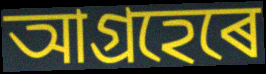
আগ্ৰহেৰে